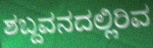
ಶಬ್ದವನದಲ್ಲಿರಿವ